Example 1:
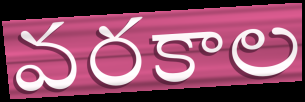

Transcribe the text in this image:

వరకాల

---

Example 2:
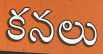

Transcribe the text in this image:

కనలు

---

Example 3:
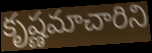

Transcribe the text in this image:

కృష్ణమాచారిని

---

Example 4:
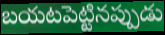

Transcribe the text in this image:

బయటపెట్టినప్పుడు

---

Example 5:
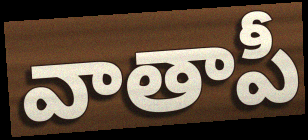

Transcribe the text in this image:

వాతాపీ